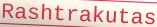
Rashtrakutas